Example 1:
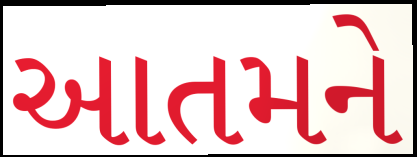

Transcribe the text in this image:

આતમને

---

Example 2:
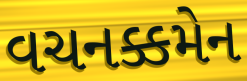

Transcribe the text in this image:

વચનક્કમેન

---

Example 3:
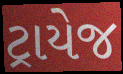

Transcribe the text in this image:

ટ્રાયેજ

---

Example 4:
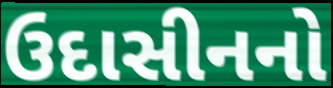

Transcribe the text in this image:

ઉદાસીનનો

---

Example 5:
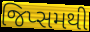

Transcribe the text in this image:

જિપ્સમથી